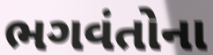
ભગવંતોના